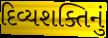
દિવ્યશક્તિનું